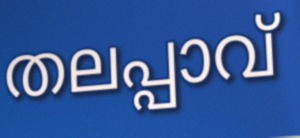
തലപ്പാവ്